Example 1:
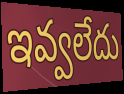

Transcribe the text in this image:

ఇవ్వలేదు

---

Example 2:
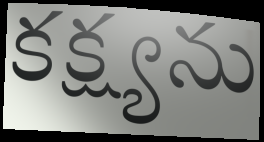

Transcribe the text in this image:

కక్ష్యను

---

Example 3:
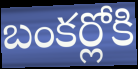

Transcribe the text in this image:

బంకర్లోకి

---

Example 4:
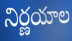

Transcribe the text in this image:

నిర్ణయాల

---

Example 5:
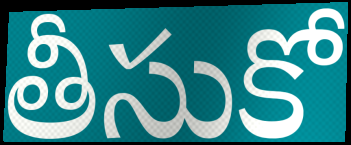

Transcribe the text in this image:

తీసుకో